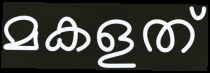
മകളത്